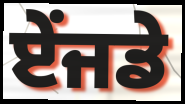
ਏਂਜਡੇ